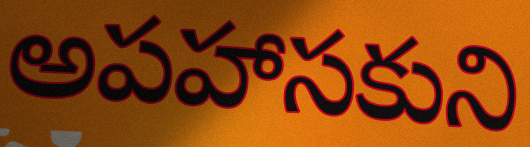
అపహాసకుని